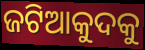
ଜଟିଆକୁଦକୁ